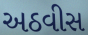
અઠવીસ